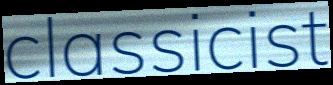
classicist